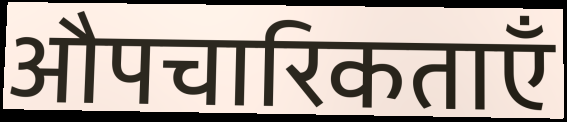
औपचारिकताएँ